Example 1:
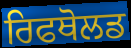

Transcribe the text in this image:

ਰਿਫਥੋਲਡ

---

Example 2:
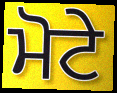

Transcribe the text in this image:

ਮੋਟੇ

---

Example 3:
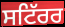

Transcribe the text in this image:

ਸਟਿੱਰਰ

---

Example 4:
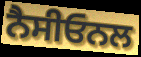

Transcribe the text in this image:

ਨੈਸੀਓਨਲ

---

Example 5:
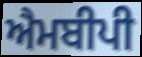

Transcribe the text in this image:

ਐਮਬੀਪੀ